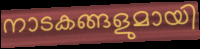
നാടകങ്ങളുമായി